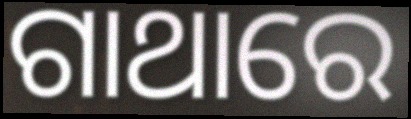
ଗାଥାରେ